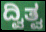
ದ್ವಿತ್ವ